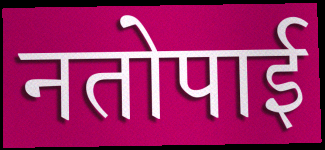
नतोपाई